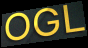
OGL